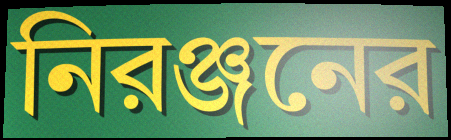
নিরঞ্জনের